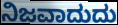
ನಿಜವಾದುದು